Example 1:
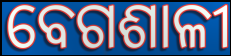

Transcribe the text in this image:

ବେଗଶାଳୀ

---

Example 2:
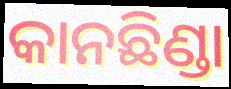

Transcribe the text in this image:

କାନଛିଣ୍ଡା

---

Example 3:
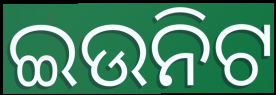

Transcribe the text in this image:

ଇଉନିଟ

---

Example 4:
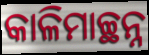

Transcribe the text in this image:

କାଳିମାଚ୍ଛନ୍ନ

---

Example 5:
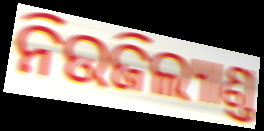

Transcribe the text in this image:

ନିଉଜିଲ୍ୟାଣ୍ଡ